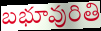
బభూవురితి